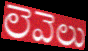
లెవెలు